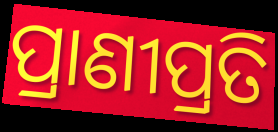
ପ୍ରାଣୀପ୍ରତି